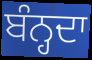
ਬੰਨ੍ਹਦਾ